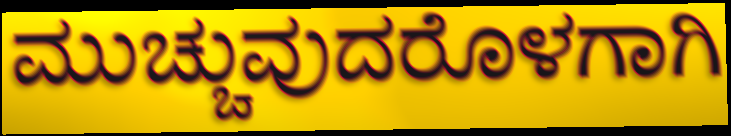
ಮುಚ್ಚುವುದರೊಳಗಾಗಿ